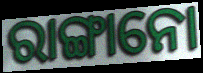
ରାଙ୍ଗାନୋ